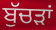
ਬੁੱਚੜਾਂ